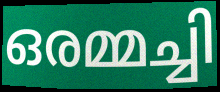
ഒരമ്മച്ചി